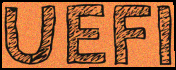
UEFI